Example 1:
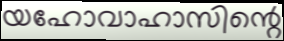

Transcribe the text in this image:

യഹോവാഹാസിന്റെ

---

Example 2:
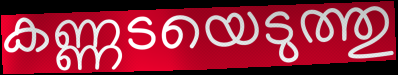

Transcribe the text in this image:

കണ്ണടയെടുത്തു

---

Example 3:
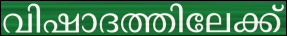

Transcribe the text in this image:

വിഷാദത്തിലേക്ക്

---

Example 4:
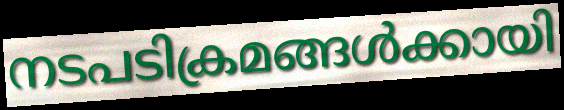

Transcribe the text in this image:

നടപടിക്രമങ്ങൾക്കായി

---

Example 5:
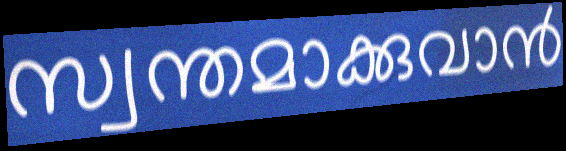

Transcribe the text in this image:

സ്വന്തമാക്കുവാൻ